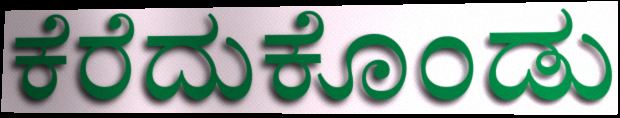
ಕೆರೆದುಕೊಂಡು